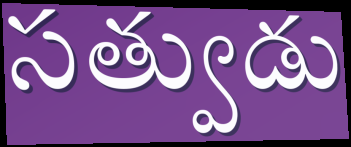
సత్వుడు